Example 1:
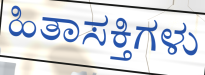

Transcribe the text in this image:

ಹಿತಾಸಕ್ತಿಗಳು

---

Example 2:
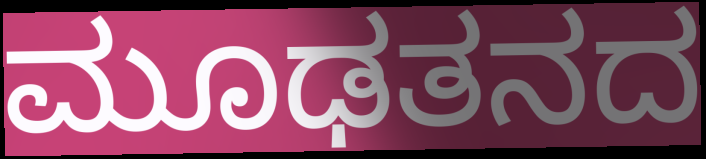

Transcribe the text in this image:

ಮೂಢತನದ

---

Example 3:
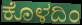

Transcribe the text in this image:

ಕೊಳದಿಂ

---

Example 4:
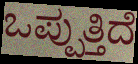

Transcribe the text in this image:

ಒಪ್ಪುತ್ತಿದೆ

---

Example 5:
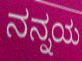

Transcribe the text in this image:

ನನ್ನಯ